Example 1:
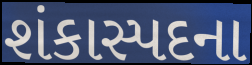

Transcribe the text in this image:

શંકાસ્પદના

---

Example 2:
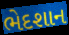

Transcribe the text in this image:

ભેદશાન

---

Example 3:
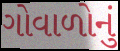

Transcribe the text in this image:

ગોવાળોનું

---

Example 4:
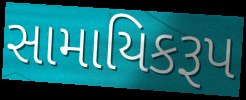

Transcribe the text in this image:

સામાયિકરૂપ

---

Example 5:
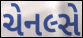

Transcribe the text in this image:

ચેનલ્સે